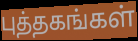
புத்தகங்கள்